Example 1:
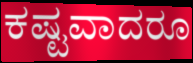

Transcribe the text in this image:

ಕಷ್ಟವಾದರೂ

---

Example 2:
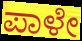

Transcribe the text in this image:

ಪಾಳೇ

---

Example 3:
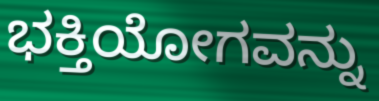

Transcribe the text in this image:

ಭಕ್ತಿಯೋಗವನ್ನು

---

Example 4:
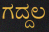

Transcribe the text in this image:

ಗದ್ದಲ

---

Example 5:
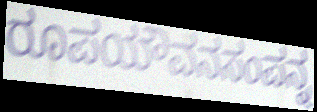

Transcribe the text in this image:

ರೂಪಯೌವನಸಂಪನ್ನ